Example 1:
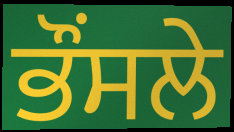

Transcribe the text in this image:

ਭੌਂਸਲੇ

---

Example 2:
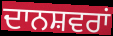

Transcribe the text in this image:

ਦਾਨਸ਼ਵਰਾਂ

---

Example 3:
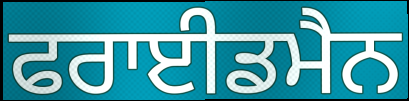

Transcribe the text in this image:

ਫਰਾਈਡਮੈਨ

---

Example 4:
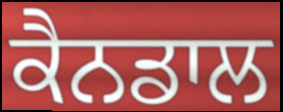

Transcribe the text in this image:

ਕੈਨਡਾਲ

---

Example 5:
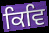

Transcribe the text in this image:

ਕਿਵਿ